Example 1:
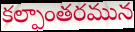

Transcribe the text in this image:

కల్పాంతరమున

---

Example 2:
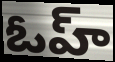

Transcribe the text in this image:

ఓహ్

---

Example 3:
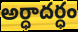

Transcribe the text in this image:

అర్ధాదర్ధం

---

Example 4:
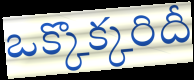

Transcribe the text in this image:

ఒక్కొక్కరిదీ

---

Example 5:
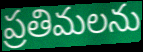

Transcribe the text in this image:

ప్రతిమలను